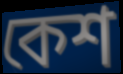
কেশ